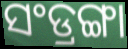
ସଂଡ୍ରଙ୍ଗା